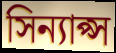
সিন্যাপ্স